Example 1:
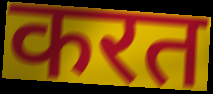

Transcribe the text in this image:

करत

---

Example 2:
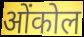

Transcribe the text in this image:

ओंकोल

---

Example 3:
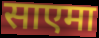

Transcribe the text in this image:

साएमा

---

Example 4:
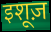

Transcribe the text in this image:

इशूज़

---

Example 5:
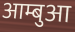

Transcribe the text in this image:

आम्बुआ